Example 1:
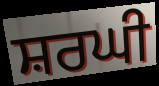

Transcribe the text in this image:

ਸ਼ਰਘੀ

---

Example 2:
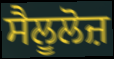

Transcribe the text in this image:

ਸੈਲੂਲੋਜ਼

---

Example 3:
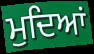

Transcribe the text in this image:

ਮੁਦਿਆਂ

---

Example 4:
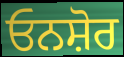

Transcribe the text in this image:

ਓਨਸ਼ੋਰ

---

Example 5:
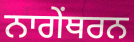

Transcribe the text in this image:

ਨਾਗੇਂਥਰਨ